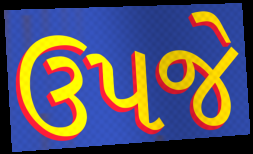
ઉપજે